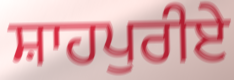
ਸ਼ਾਹਪੁਰੀਏ